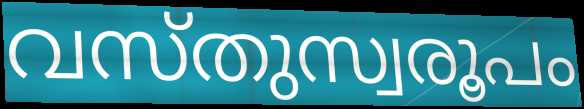
വസ്തുസ്വരൂപം